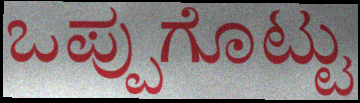
ಒಪ್ಪುಗೊಟ್ಟು